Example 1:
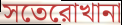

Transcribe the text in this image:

সতেরোখানা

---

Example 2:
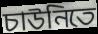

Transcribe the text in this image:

চাউনিতে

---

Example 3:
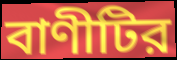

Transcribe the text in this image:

বাণীটির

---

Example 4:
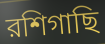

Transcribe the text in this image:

রশিগাছি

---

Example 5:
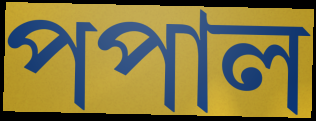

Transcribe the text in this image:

পপাল